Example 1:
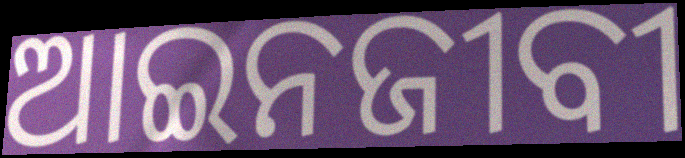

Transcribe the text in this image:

ଆଇନଜୀବୀ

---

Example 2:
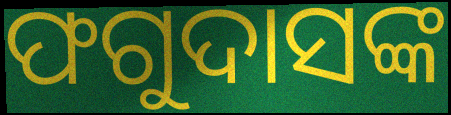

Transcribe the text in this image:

ଫଗୁଦାସଙ୍କ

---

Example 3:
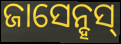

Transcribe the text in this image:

ଜାସେନ୍ହସ୍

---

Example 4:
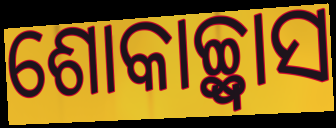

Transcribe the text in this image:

ଶୋକାଚ୍ଛ୍ୱାସ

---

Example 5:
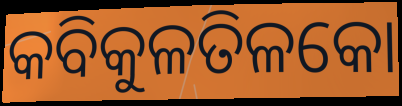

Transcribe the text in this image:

କବିକୁଳତିଳକୋ